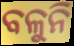
ବଳୁନି